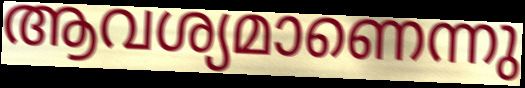
ആവശ്യമാണെന്നു